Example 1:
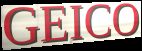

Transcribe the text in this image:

GEICO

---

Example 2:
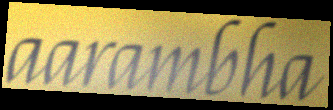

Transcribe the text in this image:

aarambha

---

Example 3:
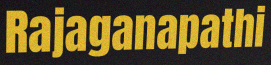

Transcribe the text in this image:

Rajaganapathi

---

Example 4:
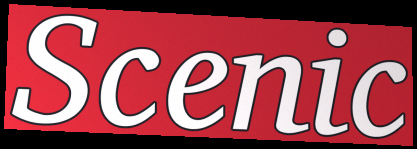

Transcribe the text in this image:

Scenic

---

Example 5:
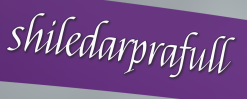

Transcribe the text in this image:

shiledarprafull